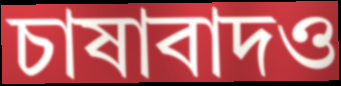
চাষাবাদও